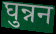
घुन्नन